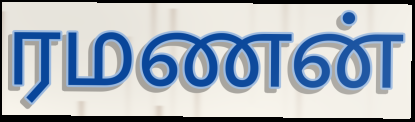
ரமணன்